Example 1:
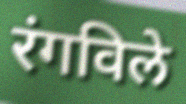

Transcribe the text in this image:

रंगविले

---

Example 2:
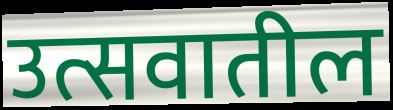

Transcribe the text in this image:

उत्सवातील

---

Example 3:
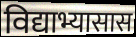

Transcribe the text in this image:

विद्याभ्यासास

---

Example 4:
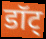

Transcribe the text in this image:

डॉट्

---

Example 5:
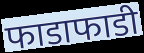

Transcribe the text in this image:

फाडाफाडी